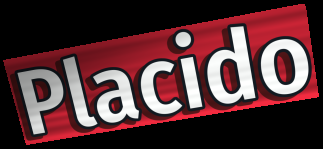
Placido